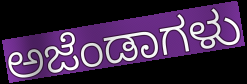
ಅಜೆಂಡಾಗಳು